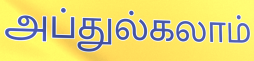
அப்துல்கலாம்